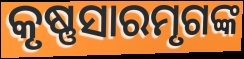
କୃଷ୍ଣସାରମୃଗଙ୍କ